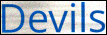
Devils